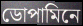
ডোপামিনে